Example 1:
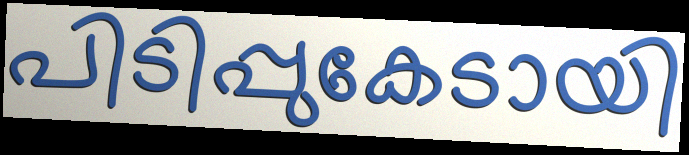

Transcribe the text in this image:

പിടിപ്പുകേടായി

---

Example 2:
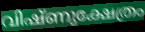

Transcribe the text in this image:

വിഷ്ണുക്ഷേത്രം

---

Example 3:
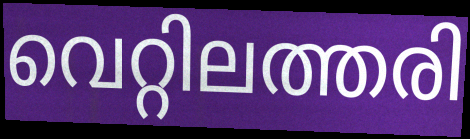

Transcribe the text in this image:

വെറ്റിലത്തരി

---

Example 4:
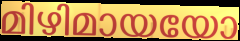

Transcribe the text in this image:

മിഴിമായയോ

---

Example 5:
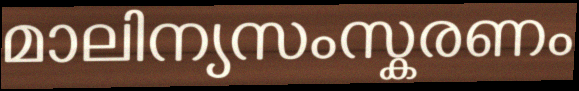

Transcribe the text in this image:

മാലിന്യസംസ്കരണം